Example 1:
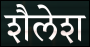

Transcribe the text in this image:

शैलेश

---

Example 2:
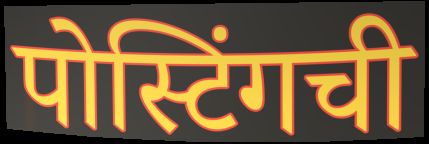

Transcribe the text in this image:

पोस्टिंगची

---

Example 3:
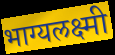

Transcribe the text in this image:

भाग्यलक्ष्मी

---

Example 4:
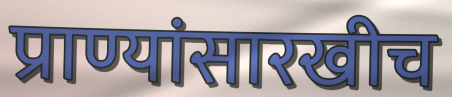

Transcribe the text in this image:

प्राण्यांसारखीच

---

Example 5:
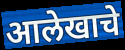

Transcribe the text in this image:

आलेखाचे